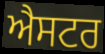
ਐਸਟਰ